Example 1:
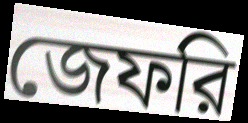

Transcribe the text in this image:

জেফরি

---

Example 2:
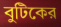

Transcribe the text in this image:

বুটিকের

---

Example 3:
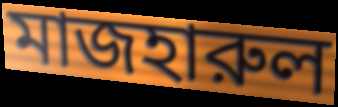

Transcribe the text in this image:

মাজহারুল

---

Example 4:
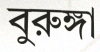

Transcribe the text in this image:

বুরুঙ্গা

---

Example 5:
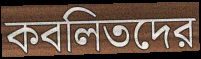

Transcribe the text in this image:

কবলিতদের